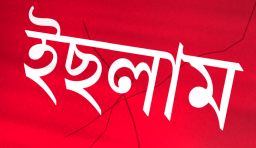
ইছলাম